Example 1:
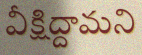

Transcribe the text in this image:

వీక్షిద్దామని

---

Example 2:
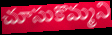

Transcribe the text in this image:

చూసుకొమ్మని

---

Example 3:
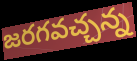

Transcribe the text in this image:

జరగవచ్చన్న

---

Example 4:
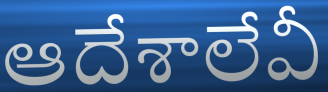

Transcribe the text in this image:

ఆదేశాలేవీ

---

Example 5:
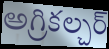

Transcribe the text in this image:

అగ్రికల్చర్